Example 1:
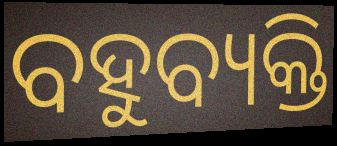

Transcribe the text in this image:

ବହୁବ୍ୟକ୍ତି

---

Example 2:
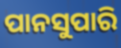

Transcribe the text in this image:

ପାନସୁପାରି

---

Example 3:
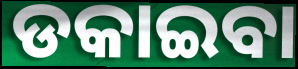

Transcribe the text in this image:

ଡକାଇବା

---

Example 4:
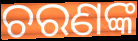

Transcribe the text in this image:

ଚରଣଙ୍କ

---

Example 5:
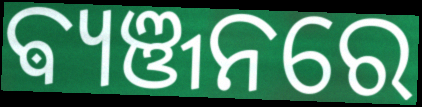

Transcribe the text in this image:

ଵ୍ୟଞ୍ଜନରେ